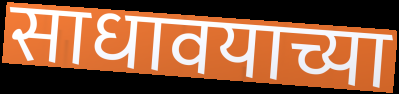
साधावयाच्या